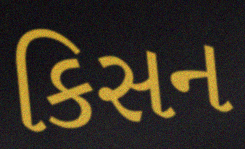
કિસન